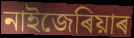
নাইজেৰিয়াৰ